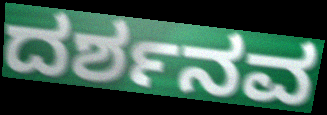
ದರ್ಶನವ